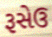
રૂસેઉ